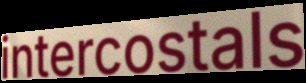
intercostals